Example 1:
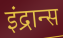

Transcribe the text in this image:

इंद्रान्स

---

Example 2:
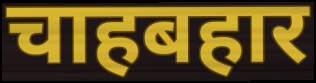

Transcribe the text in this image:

चाहबहार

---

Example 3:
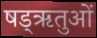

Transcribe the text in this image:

षड्ऋतुओं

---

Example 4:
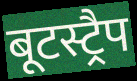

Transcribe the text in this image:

बूटस्ट्रैप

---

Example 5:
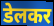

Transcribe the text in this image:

डेलकर